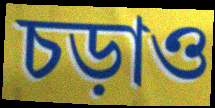
চড়াও